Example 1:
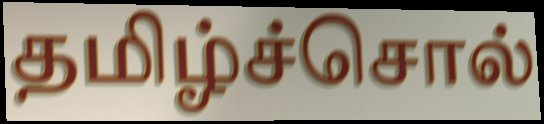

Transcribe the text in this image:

தமிழ்ச்சொல்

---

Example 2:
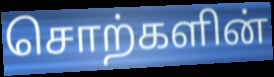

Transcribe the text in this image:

சொற்களின்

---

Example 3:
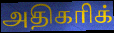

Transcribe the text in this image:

அதிகரிக்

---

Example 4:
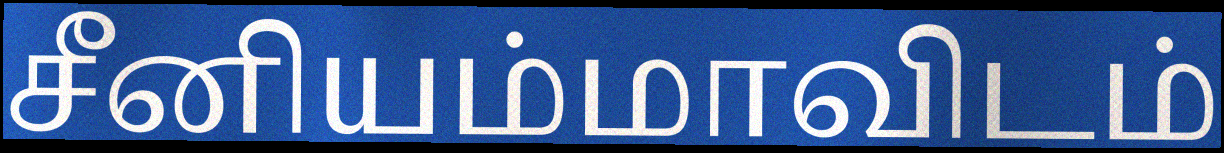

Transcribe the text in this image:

சீனியம்மாவிடம்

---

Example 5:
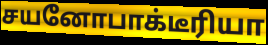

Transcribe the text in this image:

சயனோபாக்டீரியா